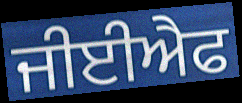
ਜੀਈਐਫ